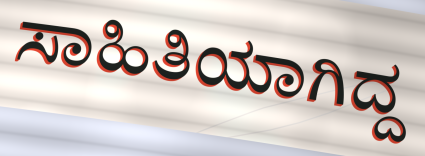
ಸಾಹಿತಿಯಾಗಿದ್ದ